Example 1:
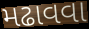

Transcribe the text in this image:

મઢાવવા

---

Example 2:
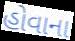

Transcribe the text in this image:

હોવાના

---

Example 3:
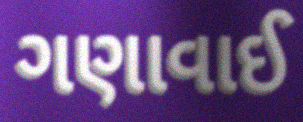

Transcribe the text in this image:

ગણાવાઈ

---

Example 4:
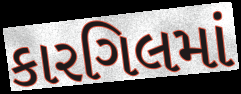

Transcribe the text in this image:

કારગિલમાં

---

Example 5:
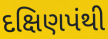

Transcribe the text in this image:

દક્ષિણપંથી